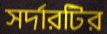
সর্দারটির